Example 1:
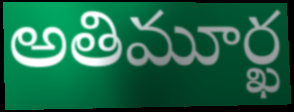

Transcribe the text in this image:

అతిమూర్ఖ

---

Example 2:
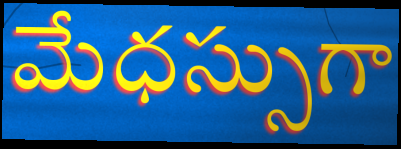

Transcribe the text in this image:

మేధస్సుగా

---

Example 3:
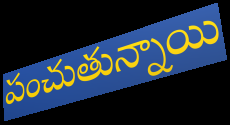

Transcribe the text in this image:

పంచుతున్నాయి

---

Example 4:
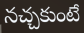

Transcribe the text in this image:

నచ్చకుంటే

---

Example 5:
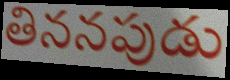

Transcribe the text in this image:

తిననపుడు